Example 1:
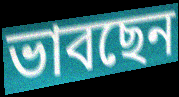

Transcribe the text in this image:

ভাবছেন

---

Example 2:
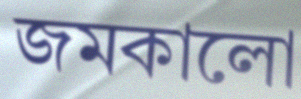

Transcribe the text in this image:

জমকালো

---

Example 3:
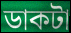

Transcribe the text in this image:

ডাকটা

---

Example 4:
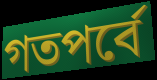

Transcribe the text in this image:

গতপর্বে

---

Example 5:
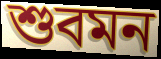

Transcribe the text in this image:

শুবমন